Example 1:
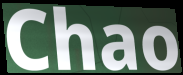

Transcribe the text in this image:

Chao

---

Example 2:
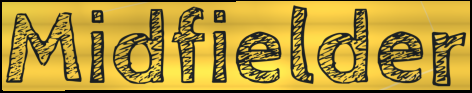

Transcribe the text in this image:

Midfielder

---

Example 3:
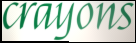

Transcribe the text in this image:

crayons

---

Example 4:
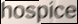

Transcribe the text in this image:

hospice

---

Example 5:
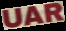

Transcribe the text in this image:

UAR